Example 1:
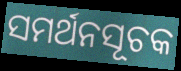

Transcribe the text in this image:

ସମର୍ଥନସୂଚକ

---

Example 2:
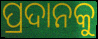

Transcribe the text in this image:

ପ୍ରଦାନକୁ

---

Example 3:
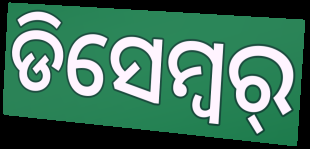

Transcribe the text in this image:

ଡିସେମ୍ବର୍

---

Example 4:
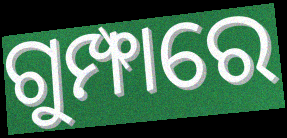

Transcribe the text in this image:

ଗୁମ୍ଫାରେ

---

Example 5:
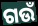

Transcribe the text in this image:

ଗଉଁ